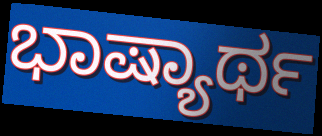
ಭಾಷ್ಯಾರ್ಥ